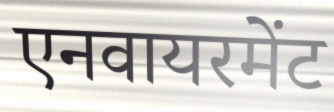
एनवायरमेंट